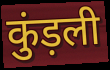
कुंड़ली